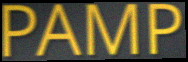
PAMP